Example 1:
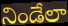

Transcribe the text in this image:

నిండేలా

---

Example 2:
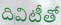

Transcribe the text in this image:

దివిటీతో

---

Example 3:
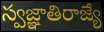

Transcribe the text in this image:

స్వజ్ఞాతిరాజ్యే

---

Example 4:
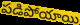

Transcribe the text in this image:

పడిపోయాయి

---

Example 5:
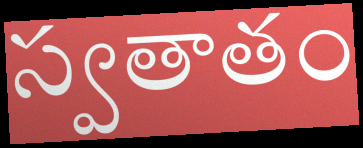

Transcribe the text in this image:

స్వతాతం